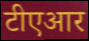
टीएआर